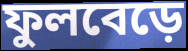
ফুলবেড়ে